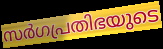
സർഗപ്രതിഭയുടെ